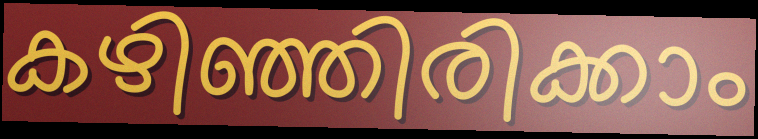
കഴിഞ്ഞിരിക്കാം